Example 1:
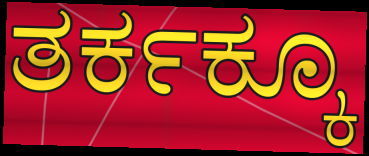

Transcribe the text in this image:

ತರ್ಕಕ್ಕೂ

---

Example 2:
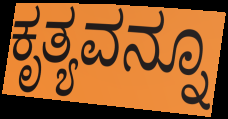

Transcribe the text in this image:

ಕೃತ್ಯವನ್ನೂ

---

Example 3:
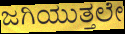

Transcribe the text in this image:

ಜಗಿಯುತ್ತಲೇ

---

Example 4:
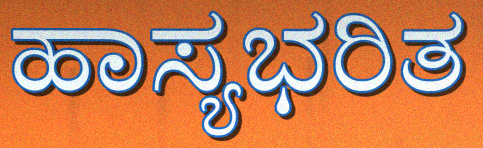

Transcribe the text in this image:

ಹಾಸ್ಯಭರಿತ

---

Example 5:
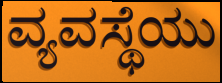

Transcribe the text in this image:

ವ್ಯವಸ್ಥೆಯು